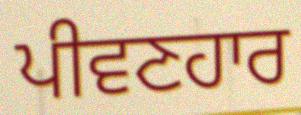
ਪੀਵਣਹਾਰ